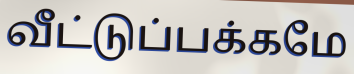
வீட்டுப்பக்கமே